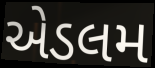
એડલમ